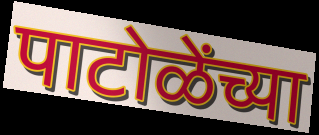
पाटोळेंच्या